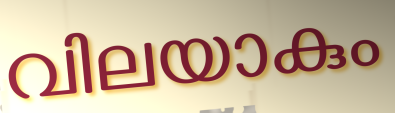
വിലയാകും